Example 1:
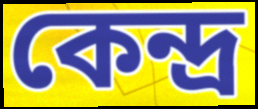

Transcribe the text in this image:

কেন্দ্ৰ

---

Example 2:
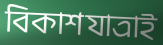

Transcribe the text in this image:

বিকাশযাত্ৰাই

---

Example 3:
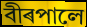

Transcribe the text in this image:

বীৰপালে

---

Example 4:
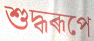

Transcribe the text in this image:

শুদ্ধৰূপে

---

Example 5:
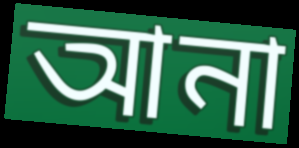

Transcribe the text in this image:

আনা